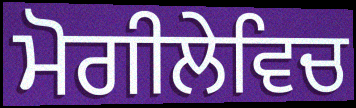
ਮੋਗੀਲੇਵਿਚ